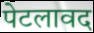
पेटलावद